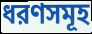
ধরণসমূহ